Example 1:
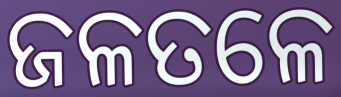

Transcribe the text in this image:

ଜଳତଳେ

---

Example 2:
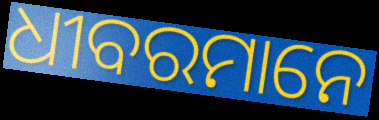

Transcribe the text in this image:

ଧୀବରମାନେ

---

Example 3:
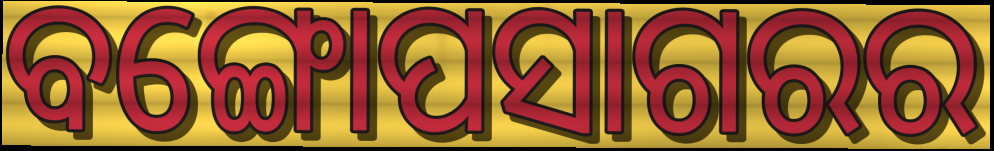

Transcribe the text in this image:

ବଙ୍ଗୋପସାଗରର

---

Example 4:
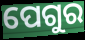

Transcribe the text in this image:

ପେଗୁର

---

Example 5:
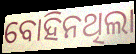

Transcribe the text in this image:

ବୋହିନଥିଲା